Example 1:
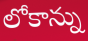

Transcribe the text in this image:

లోకాన్ను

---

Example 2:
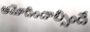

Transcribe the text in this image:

ఆమోదించాల్సిందే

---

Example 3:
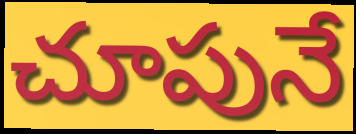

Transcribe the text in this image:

చూపునే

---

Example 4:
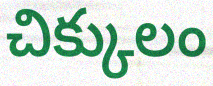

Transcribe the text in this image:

చిక్కులం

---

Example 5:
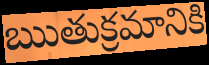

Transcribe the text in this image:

ఋతుక్రమానికి